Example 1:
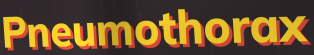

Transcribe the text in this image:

Pneumothorax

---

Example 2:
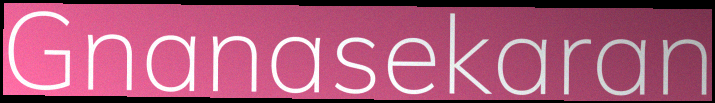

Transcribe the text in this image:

Gnanasekaran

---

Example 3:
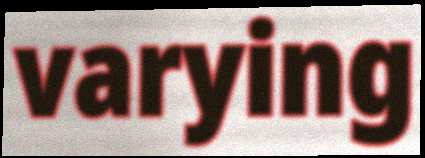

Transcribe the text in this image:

varying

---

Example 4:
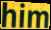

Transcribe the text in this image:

him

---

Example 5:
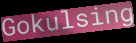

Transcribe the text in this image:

Gokulsing